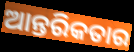
ଆନ୍ତରିକତାର